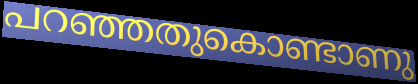
പറഞ്ഞതുകൊണ്ടാണു